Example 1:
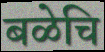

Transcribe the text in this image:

बळेचि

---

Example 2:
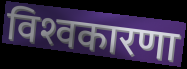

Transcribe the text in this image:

विश्वकारणा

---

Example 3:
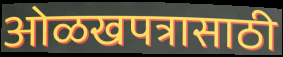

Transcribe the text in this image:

ओळखपत्रासाठी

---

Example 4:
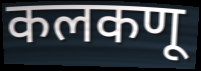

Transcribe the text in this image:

कलकणू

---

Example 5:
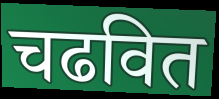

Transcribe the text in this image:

चढवित